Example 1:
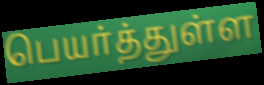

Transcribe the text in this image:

பெயர்த்துள்ள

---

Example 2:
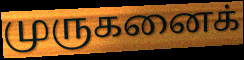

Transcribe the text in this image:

முருகனைக்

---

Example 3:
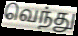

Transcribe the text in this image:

வெந்து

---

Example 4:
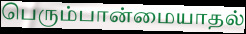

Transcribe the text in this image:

பெரும்பான்மையாதல்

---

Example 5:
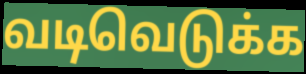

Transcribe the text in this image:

வடிவெடுக்க